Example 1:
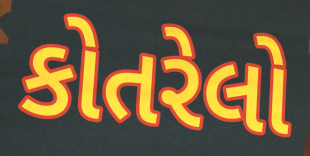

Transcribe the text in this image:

કોતરેલો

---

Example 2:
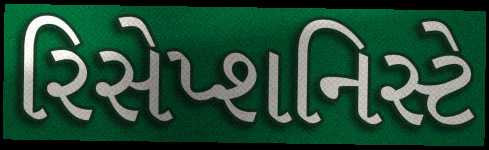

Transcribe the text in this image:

રિસેપ્શનિસ્ટે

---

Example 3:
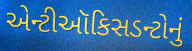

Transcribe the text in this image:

એન્ટીઑકિસડન્ટોનું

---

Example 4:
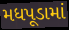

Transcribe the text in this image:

મધપૂડામાં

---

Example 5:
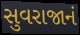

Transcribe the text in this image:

સુવરાજાનં